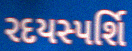
રદયસ્પર્શિ